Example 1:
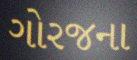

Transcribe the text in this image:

ગોરજના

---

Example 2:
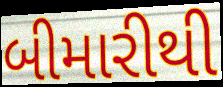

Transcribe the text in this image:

બીમારીથી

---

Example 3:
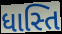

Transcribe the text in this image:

ધાસ્તિ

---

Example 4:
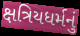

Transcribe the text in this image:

ક્ષત્રિયધર્મનું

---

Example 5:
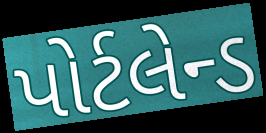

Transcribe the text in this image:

પોર્ટલેન્ડ